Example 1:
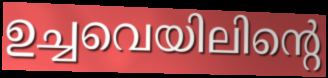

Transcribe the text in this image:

ഉച്ചവെയിലിന്റെ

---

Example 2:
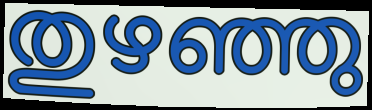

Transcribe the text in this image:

തുഴഞ്ഞു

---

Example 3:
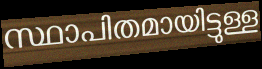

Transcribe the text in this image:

സ്ഥാപിതമായിട്ടുള്ള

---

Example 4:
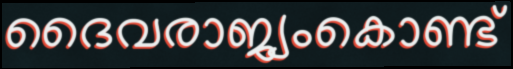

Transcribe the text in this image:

ദൈവരാജ്യംകൊണ്ട്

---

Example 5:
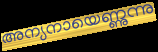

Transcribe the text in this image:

അന്യനായെണ്ണുന്നു